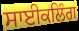
ਸਾਈਕਲਿੰਗ